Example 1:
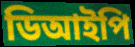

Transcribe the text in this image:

ডিআইপি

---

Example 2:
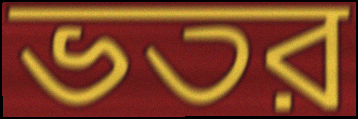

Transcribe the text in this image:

ভতর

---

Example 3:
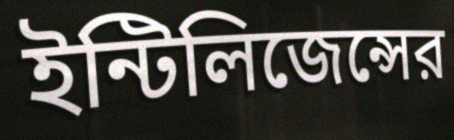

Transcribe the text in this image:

ইন্টিলিজেন্সের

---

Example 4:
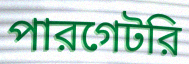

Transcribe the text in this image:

পারগেটরি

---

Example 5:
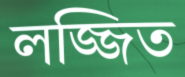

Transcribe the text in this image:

লজ্জিত